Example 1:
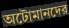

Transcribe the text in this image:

অটোমানদের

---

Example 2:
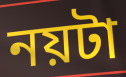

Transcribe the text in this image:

নয়টা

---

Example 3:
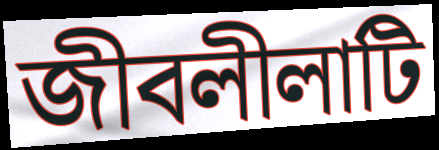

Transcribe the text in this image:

জীবলীলাটি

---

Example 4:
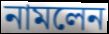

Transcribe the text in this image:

নামলেন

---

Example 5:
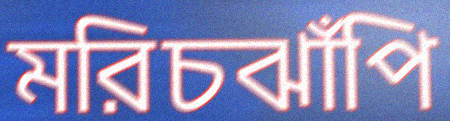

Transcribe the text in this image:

মরিচঝাঁপি